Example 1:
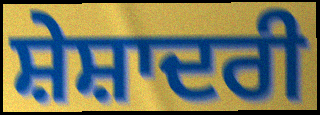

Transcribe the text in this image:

ਸ਼ੇਸ਼ਾਦਰੀ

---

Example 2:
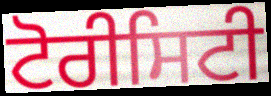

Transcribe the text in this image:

ਟੋਰੀਸਿਟੀ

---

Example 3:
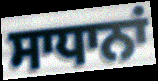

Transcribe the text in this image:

ਸਾਧਾਨਾਂ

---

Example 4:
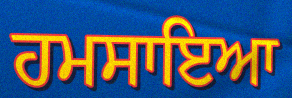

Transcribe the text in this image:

ਹਮਸਾਇਆ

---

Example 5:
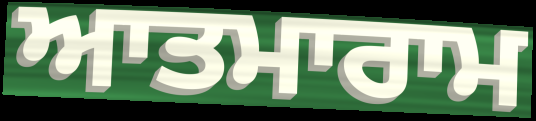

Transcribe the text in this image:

ਆਤਮਾਰਾਮ